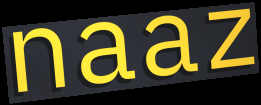
naaz